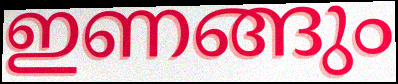
ഇണങ്ങും